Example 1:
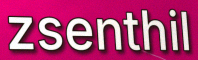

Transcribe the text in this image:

zsenthil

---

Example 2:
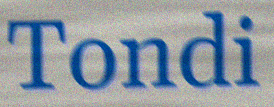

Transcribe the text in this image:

Tondi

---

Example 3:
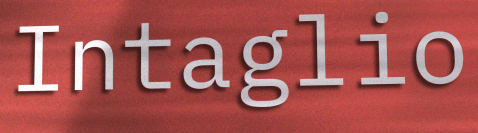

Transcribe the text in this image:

Intaglio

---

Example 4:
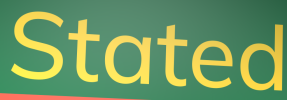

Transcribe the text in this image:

Stated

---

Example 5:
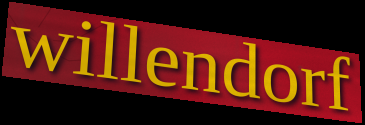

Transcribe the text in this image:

willendorf